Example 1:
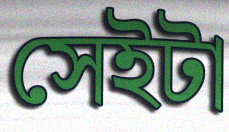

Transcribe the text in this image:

সেইটা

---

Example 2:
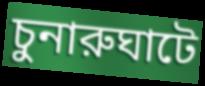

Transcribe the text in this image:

চুনারুঘাটে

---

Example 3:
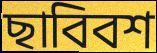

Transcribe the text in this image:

ছাবিবশ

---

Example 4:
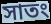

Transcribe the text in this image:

সাতং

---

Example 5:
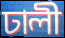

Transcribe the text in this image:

ঢালী